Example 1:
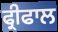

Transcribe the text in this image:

ਫ੍ਰੀਫਾਲ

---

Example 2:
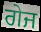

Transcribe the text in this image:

ਗੇਜ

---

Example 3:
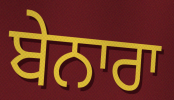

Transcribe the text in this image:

ਬੇਨਾਰਾ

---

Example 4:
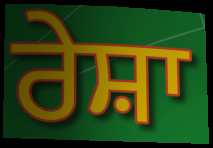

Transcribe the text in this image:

ਰੇਸ਼ਾ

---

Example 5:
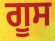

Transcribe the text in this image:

ਗੂਸ